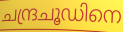
ചന്ദ്രചൂഡിനെ